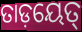
ତାଡ଼ୟେତ୍